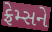
ફ્રેમ્સને